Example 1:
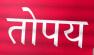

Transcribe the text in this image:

तोपय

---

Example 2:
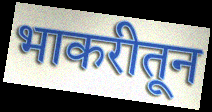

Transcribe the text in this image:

भाकरीतून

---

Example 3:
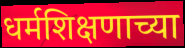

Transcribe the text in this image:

धर्मशिक्षणाच्या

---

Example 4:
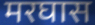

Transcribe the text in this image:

मरघास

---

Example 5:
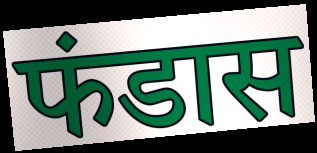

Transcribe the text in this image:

फंडास